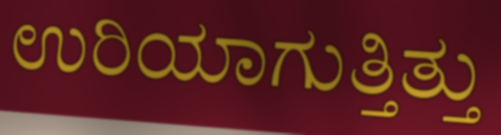
ಉರಿಯಾಗುತ್ತಿತ್ತು